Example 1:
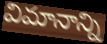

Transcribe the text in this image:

విమానాన్ని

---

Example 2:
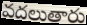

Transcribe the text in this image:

వదలుతారు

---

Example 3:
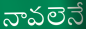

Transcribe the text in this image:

నావలెనే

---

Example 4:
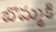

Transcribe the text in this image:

బొమ్మకి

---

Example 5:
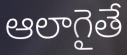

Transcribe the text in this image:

ఆలాగైతే